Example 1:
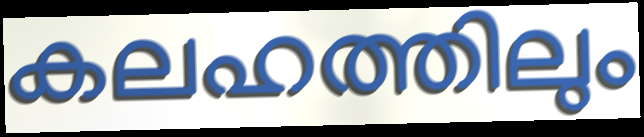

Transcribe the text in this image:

കലഹത്തിലും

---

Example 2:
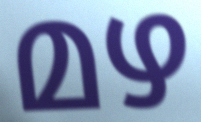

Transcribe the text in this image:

മഴ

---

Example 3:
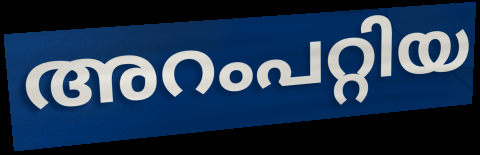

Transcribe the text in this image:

അറംപറ്റിയ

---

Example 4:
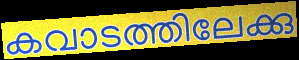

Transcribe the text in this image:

കവാടത്തിലേക്കു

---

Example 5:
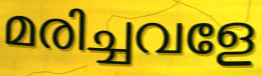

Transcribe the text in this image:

മരിച്ചവളേ